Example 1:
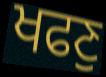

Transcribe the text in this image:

ਖਫਣੁ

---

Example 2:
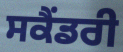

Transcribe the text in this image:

ਸਕੈਂਡਰੀ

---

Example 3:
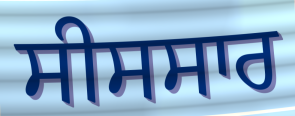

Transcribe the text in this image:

ਸੀਸਸਾਰ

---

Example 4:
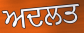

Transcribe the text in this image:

ਅਦਲਤ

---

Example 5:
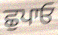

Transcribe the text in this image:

ਛੁਪਾਓ